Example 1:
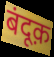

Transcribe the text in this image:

बंदूक़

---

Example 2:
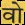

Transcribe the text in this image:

वो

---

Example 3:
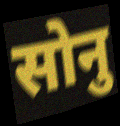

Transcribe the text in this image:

सोनु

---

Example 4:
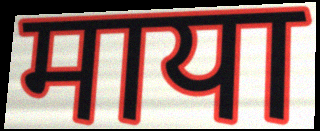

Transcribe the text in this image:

माया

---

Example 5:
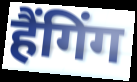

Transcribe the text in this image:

हैंगिंग